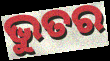
ଭୁତର